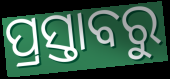
ପ୍ରସ୍ତାବରୁ